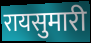
रायसुमारी